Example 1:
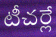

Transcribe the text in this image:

టీచర్లే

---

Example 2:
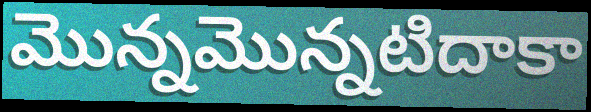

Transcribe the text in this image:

మొన్నమొన్నటిదాకా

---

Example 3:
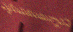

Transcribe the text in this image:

పట్టించుకుంటున్నారని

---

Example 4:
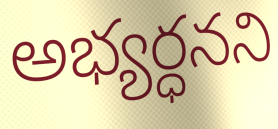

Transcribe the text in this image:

అభ్యర్ధనని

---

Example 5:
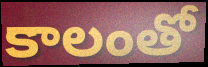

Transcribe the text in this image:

కాలంతో